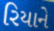
રિયાને